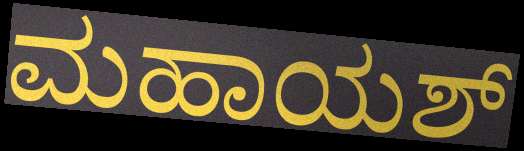
ಮಹಾಯಶ್